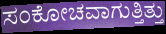
ಸಂಕೋಚವಾಗುತ್ತಿತ್ತು